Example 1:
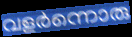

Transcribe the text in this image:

വളർന്നൊരു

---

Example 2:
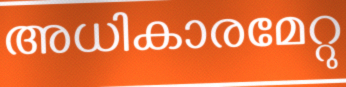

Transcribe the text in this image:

അധികാരമേറ്റു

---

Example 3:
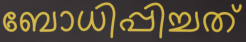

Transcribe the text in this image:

ബോധിപ്പിച്ചത്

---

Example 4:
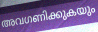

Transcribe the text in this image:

അവഗണിക്കുകയും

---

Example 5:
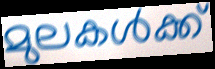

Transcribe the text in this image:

മുലകൾക്ക്